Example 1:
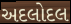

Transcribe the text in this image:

અદલોદલ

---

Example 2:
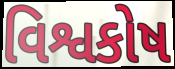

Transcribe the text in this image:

વિશ્વકોષ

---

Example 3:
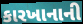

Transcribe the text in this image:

કારખાનાની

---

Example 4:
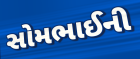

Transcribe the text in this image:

સોમભાઈની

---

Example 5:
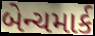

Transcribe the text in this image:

બેન્ચમાર્ક